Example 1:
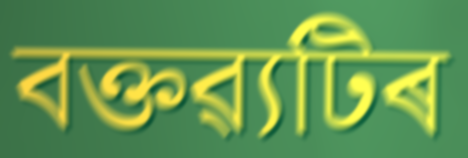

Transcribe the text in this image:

বক্তৱ্যটিৰ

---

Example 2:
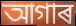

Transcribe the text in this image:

আগাৰ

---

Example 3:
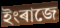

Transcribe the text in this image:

ইংৰাজে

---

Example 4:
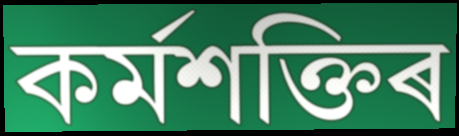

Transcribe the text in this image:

কৰ্মশক্তিৰ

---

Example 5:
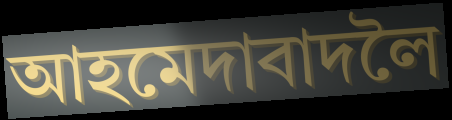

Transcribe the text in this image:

আহমেদাবাদলৈ